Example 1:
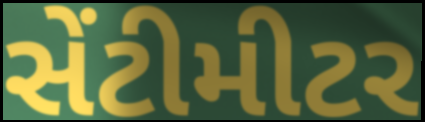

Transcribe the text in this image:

સેંટીમીટર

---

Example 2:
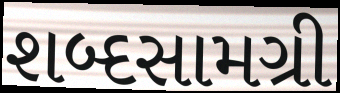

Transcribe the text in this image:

શબ્દસામગ્રી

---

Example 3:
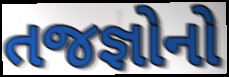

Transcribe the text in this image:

તજજ્ઞોનો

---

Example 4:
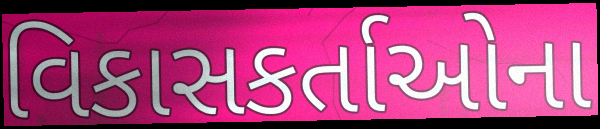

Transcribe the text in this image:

વિકાસકર્તાઓના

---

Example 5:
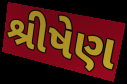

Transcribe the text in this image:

શ્રીષેણ